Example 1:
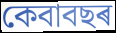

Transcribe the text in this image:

কেবাবছৰ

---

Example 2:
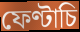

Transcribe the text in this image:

ফেণ্টাচি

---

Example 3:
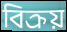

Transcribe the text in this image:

বিক্ৰয়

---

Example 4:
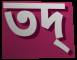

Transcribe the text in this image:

তদ্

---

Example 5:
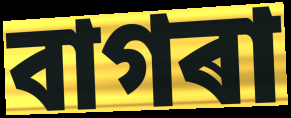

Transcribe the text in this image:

বাগৰা